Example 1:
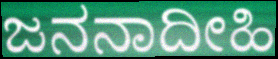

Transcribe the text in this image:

ಜನನಾದೀಹಿ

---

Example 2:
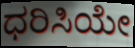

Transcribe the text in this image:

ಧರಿಸಿಯೇ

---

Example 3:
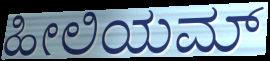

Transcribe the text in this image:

ಹೀಲಿಯಮ್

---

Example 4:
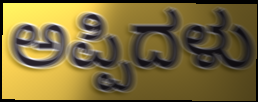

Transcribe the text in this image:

ಅಪ್ಪಿದಳು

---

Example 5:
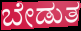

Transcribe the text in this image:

ಬೇಡುತ